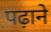
पढ़ाने